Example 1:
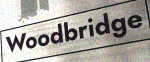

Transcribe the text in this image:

Woodbridge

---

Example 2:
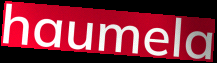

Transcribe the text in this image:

haumela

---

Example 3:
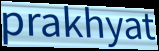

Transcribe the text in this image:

prakhyat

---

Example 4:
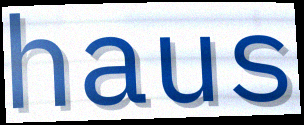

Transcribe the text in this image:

haus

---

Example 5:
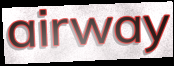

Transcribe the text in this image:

airway